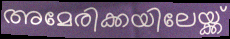
അമേരിക്കയിലേയ്ക്ക്